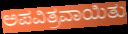
ಅಪವಿತ್ರವಾಯಿತು